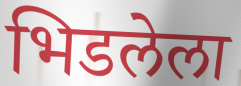
भिडलेला